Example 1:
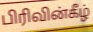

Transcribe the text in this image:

பிரிவின்கீழ்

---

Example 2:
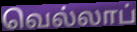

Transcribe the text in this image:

வெல்லாப்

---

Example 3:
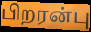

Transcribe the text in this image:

பிறரன்பு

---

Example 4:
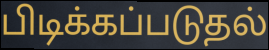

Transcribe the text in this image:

பிடிக்கப்படுதல்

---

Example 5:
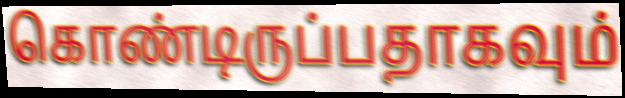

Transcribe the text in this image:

கொண்டிருப்பதாகவும்